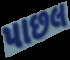
પાછલ